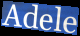
Adele